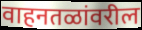
वाहनतळांवरील